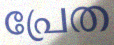
പ്രേത